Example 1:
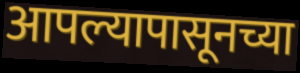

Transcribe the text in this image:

आपल्यापासूनच्या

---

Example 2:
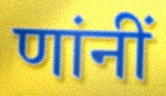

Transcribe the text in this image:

णांनीं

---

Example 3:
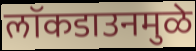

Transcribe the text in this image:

लॉकडाउनमुळे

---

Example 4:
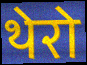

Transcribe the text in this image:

थेरो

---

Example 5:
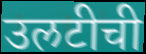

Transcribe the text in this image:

उलटीची